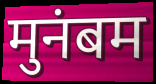
मुनंबम